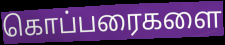
கொப்பரைகளை